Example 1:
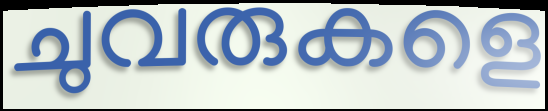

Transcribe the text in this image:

ചുവരുകളെ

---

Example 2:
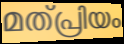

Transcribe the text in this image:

മത്പ്രിയം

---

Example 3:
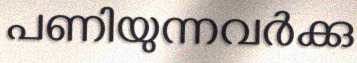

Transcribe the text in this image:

പണിയുന്നവർക്കു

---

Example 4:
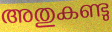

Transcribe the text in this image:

അതുകണ്ടു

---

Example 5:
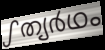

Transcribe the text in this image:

ഽത്യർഥം